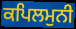
ਕਪਿਲਮੁਨੀ